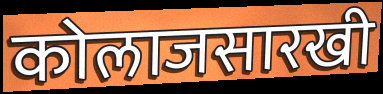
कोलाजसारखी